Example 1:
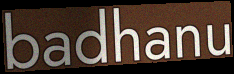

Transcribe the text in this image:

badhanu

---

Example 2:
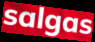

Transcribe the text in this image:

salgas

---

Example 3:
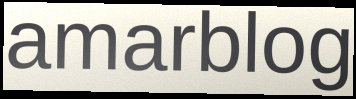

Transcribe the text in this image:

amarblog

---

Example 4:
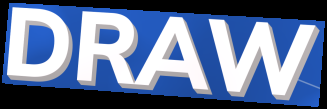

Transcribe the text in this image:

DRAW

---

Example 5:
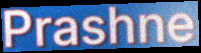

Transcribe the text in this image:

Prashne